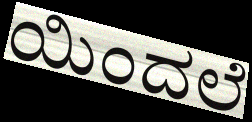
ಯಿಂದಲೆ